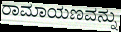
ರಾಮಾಯಣವನ್ನು